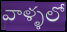
వాళ్ళలో